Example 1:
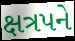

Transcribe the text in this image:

ક્ષત્રપને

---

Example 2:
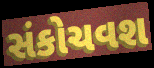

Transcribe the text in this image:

સંકોચવશ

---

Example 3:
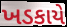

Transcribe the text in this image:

ખડકાયે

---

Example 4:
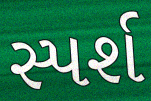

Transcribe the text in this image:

સ્પર્શ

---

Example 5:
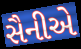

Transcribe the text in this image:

સૈનીએ